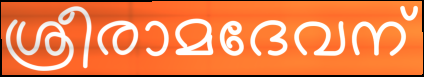
ശ്രീരാമദേവന്